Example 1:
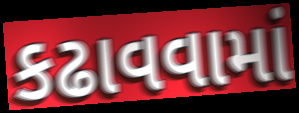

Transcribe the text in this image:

કઢાવવામાં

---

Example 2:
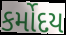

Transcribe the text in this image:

કર્મોદય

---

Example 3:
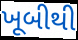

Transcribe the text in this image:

ખૂબીથી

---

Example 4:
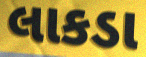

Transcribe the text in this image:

લાકડા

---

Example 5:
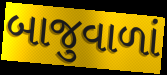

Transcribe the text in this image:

બાજુવાળાં